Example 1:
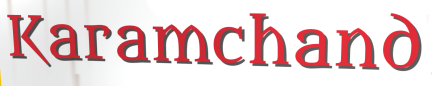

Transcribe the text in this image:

Karamchand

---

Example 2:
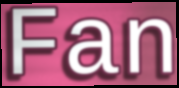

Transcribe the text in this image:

Fan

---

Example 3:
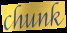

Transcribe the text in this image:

chunk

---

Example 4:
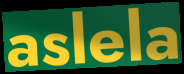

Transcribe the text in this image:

aslela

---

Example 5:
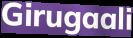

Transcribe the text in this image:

Girugaali